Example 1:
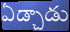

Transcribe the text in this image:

ఏడ్చాడు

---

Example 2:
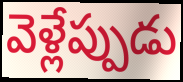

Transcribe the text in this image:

వెళ్లేప్పుడు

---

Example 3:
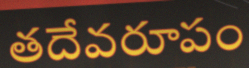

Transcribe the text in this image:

తదేవరూపం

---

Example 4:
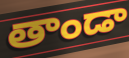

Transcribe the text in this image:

తాండా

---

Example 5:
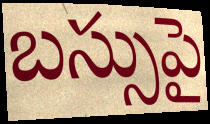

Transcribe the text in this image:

బస్సుపై